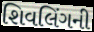
શિવલિંગની